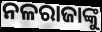
ନଳରାଜାଙ୍କୁ